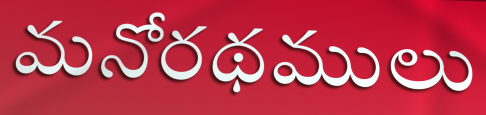
మనోరథములు